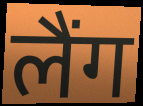
लैंग